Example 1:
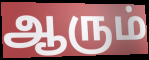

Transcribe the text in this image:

ஆரும்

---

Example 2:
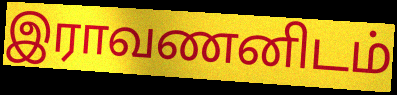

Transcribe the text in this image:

இராவணனிடம்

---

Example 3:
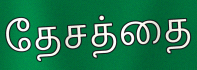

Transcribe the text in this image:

தேசத்தை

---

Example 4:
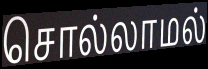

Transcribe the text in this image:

சொல்லாமல்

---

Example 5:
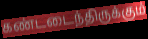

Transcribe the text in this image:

கண்டடைந்திருக்கும்